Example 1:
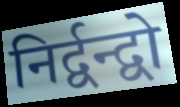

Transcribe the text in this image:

निर्द्वन्द्वो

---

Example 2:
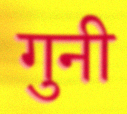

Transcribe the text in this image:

गुनी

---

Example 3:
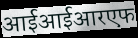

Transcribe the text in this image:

आईआईआरएफ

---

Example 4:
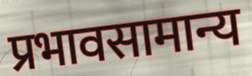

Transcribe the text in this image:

प्रभावसामान्य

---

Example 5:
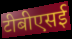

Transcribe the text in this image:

टीबीएसई